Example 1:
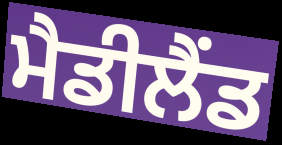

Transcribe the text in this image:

ਮੈਡੀਲੈਂਡ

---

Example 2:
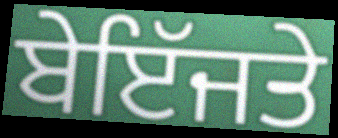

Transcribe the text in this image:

ਬੇਇੱਜਤੇ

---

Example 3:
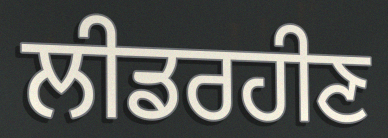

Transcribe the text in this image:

ਲੀਡਰਹੀਣ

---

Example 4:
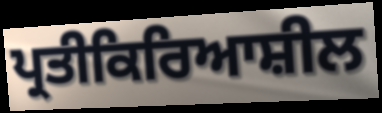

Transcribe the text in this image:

ਪ੍ਰਤੀਕਿਰਿਆਸ਼ੀਲ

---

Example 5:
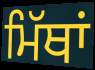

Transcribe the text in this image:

ਮਿੱਥਾਂ